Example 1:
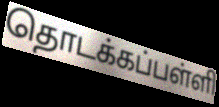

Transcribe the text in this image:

தொடக்கப்பள்ளி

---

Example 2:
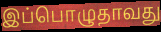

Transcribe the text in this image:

இப்பொழுதாவது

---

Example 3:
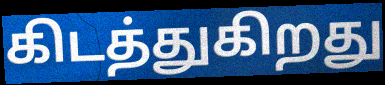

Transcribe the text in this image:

கிடத்துகிறது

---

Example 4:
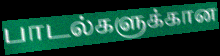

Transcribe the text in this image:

பாடல்களுக்கான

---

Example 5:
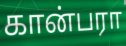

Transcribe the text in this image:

கான்பரா